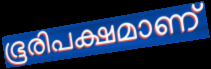
ഭൂരിപക്ഷമാണ്